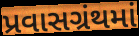
પ્રવાસગ્રંથમાં